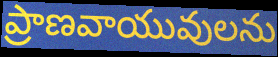
ప్రాణవాయువులను